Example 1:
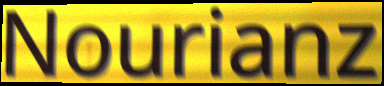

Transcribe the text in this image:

Nourianz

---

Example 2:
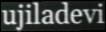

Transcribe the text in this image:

ujiladevi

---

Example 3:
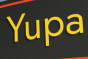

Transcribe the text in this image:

Yupa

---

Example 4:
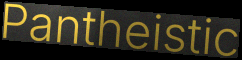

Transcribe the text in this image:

Pantheistic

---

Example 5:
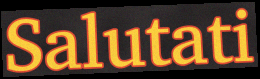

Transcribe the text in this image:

Salutati